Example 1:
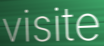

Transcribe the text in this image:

visite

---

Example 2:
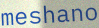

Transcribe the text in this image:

meshano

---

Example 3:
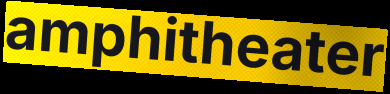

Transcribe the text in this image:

amphitheater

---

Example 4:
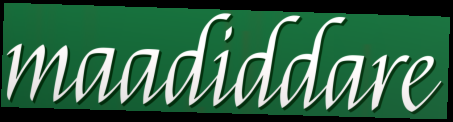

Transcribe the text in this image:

maadiddare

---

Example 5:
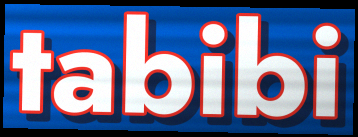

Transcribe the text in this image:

tabibi